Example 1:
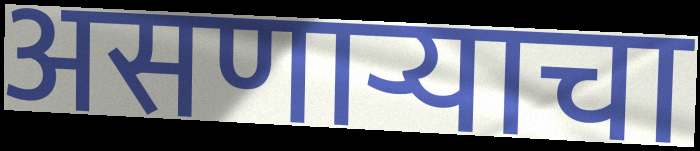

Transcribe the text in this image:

असणाऱ्याचा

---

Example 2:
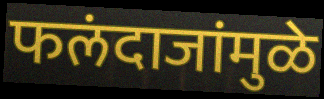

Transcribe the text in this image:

फलंदाजांमुळे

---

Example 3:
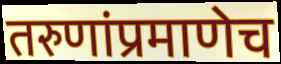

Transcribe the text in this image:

तरुणांप्रमाणेच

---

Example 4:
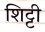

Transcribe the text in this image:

शिट्टी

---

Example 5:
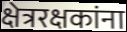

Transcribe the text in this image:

क्षेत्ररक्षकांना